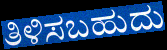
ತಿಳಿಸಬಹುದು